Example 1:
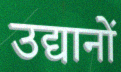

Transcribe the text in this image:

उद्यानों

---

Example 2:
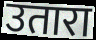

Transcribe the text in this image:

उतारा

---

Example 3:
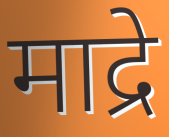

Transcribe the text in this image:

माद्रे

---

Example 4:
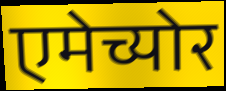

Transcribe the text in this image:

एमेच्योर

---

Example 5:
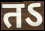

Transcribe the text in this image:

तऽ